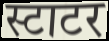
स्टाटर